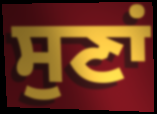
ਸੁਣਾਂ